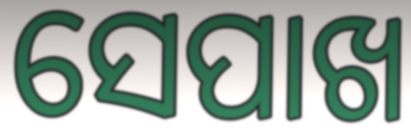
ସେପାଖ